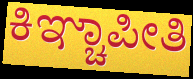
ಕಿಞ್ಚಾಪೀತಿ